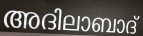
അദിലാബാദ്